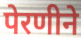
पेरणीने